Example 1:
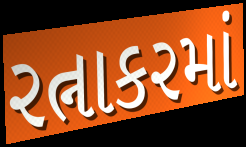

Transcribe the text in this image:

રત્નાકરમાં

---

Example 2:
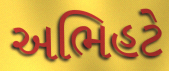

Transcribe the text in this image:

અભિહટે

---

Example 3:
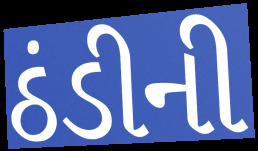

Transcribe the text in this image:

ઠંડીની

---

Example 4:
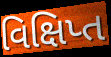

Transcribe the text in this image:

વિક્ષિપ્ત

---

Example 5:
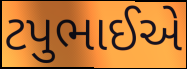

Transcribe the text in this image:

ટપુભાઈએ